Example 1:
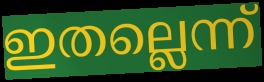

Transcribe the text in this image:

ഇതല്ലെന്ന്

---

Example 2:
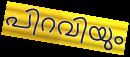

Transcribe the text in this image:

പിറവിയും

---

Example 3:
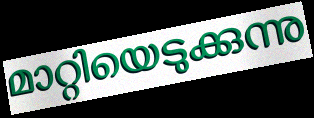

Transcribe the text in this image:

മാറ്റിയെടുക്കുന്നു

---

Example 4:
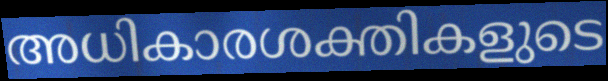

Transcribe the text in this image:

അധികാരശക്തികളുടെ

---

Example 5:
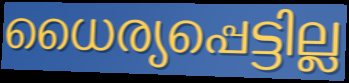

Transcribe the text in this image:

ധൈര്യപ്പെട്ടില്ല